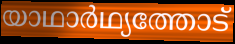
യാഥാർഥ്യത്തോട്